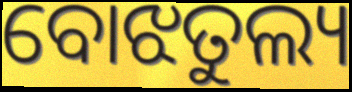
ବୋଝତୁଲ୍ୟ